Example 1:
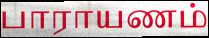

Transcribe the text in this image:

பாராயணம்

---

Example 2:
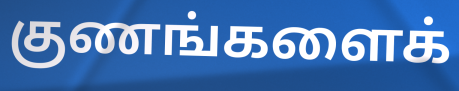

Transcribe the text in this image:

குணங்களைக்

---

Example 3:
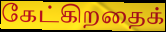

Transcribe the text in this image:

கேட்கிறதைக்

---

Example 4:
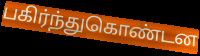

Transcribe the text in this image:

பகிர்ந்துகொண்டன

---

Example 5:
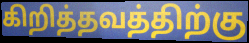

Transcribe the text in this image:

கிறித்தவத்திற்கு